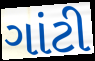
ગાંટી